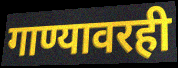
गाण्यावरही